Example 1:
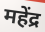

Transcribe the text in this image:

महेंद्र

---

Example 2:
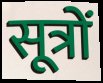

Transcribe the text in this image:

सूत्रों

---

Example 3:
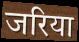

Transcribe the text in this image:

जरिया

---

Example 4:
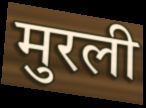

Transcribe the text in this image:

मुरली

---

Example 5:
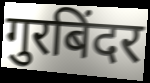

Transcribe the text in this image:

गुरबिंदर